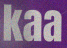
kaa